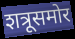
शत्रूसमोर